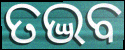
ତଦ୍ଭବ